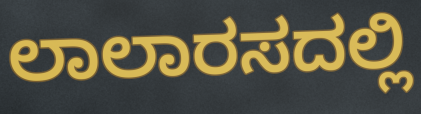
ಲಾಲಾರಸದಲ್ಲಿ